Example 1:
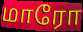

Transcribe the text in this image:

மாரோ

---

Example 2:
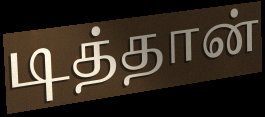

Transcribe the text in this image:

டித்தான்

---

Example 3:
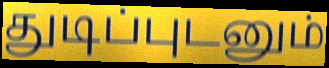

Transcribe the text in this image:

துடிப்புடனும்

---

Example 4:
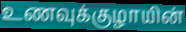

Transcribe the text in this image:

உணவுக்குழாயின்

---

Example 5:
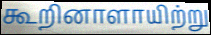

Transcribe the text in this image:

கூறினாளாயிற்று